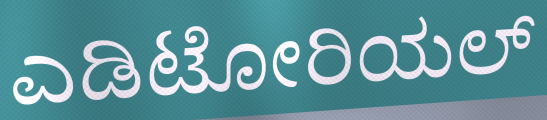
ಎಡಿಟೋರಿಯಲ್